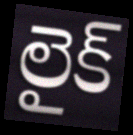
లైక్